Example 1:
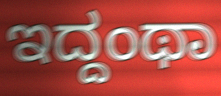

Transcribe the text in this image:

ಇದ್ದಂಥಾ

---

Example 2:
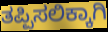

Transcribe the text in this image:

ತಪ್ಪಿಸಲಿಕ್ಕಾಗಿ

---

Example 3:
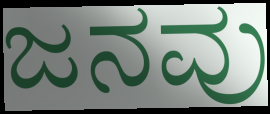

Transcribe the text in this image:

ಜನವು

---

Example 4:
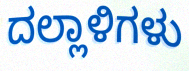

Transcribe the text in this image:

ದಲ್ಲಾಳಿಗಳು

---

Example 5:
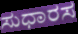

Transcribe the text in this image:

ಸುಧಾರಸ